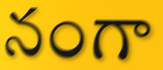
నంగా